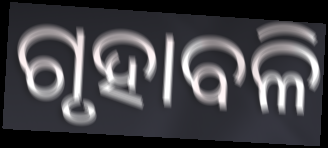
ଗୃହାବଳି